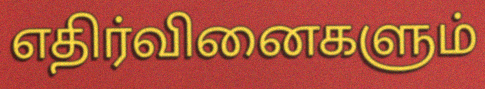
எதிர்வினைகளும்